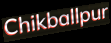
Chikballpur